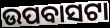
ଉପବାସଟା